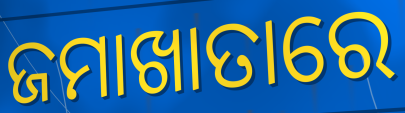
ଜମାଖାତାରେ